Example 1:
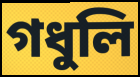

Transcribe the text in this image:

গধুলি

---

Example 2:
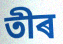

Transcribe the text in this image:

তীৰ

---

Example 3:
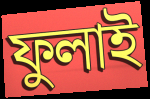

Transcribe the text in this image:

ফুলাই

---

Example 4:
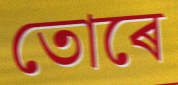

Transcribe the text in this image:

তোৰে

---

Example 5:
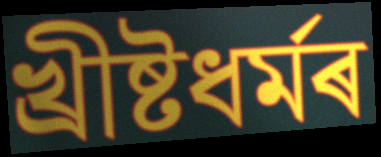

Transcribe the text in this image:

খ্ৰীষ্টধৰ্মৰ